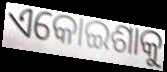
ଏକୋଇଶାକୁ